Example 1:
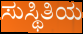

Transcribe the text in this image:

ಸುಸ್ಥಿತಿಯ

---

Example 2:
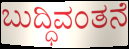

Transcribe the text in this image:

ಬುದ್ಧಿವಂತನೆ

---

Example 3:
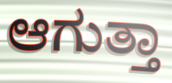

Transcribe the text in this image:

ಆಗುತ್ತಾ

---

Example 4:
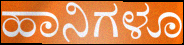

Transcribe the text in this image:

ಹಾನಿಗಳೂ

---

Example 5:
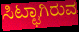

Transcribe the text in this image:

ಸಿಟ್ಟಾಗಿರುವ